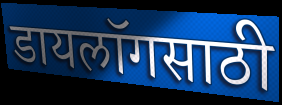
डायलॉगसाठी